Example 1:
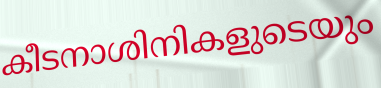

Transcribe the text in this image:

കീടനാശിനികളുടെയും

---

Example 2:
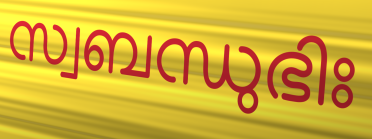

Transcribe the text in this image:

സ്വബന്ധുഭിഃ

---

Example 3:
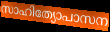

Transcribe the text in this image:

സാഹിത്യോപാസന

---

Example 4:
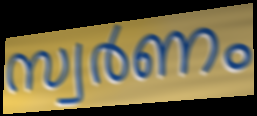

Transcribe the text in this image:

സ്വർണം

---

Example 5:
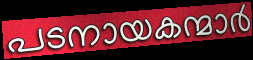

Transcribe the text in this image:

പടനായകന്മാർ